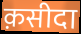
क़सीदा